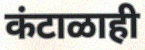
कंटाळाही